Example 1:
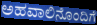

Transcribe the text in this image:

ಅಹವಾಲಿನೊಂದಿಗೆ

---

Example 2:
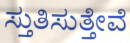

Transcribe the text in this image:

ಸ್ತುತಿಸುತ್ತೇವೆ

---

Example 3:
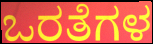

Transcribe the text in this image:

ಒರತೆಗಳ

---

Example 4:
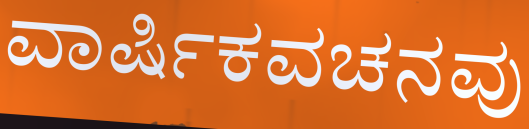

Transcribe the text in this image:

ವಾರ್ಷಿಕವಚನವು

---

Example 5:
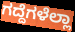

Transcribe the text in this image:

ಗದ್ದೆಗಳೆಲ್ಲಾ